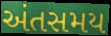
અંતસમય